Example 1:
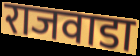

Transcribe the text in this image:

राजवाडा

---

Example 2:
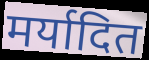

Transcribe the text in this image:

मर्यादित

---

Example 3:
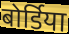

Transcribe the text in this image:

बोर्डिया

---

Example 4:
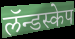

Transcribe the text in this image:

लॅन्डस्केप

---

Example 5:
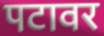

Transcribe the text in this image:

पटावर